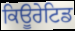
ਕਿਊਰੇਟਿਡ